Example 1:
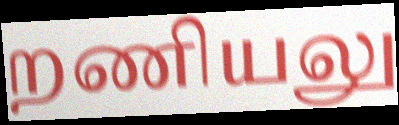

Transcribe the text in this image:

றணியலு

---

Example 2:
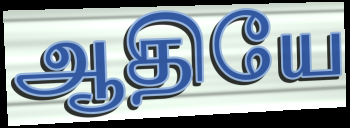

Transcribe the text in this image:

ஆதியே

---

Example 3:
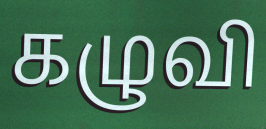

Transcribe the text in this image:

கழுவி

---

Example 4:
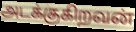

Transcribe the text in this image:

அடக்குகிறவன்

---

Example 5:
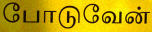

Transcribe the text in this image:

போடுவேன்